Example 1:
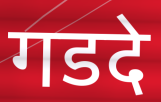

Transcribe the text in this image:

गडदे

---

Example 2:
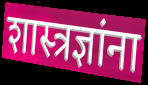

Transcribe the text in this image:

शास्त्रज्ञांना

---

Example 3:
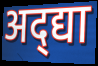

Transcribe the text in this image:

अद्द्या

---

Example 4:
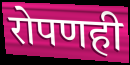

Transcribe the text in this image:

रोपणही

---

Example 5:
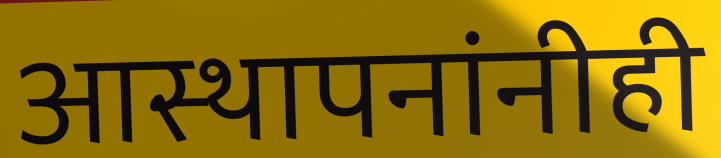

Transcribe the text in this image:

आस्थापनांनीही